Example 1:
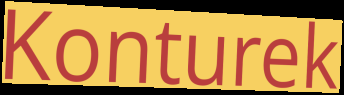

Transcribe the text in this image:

Konturek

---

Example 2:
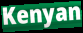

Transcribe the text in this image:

Kenyan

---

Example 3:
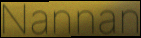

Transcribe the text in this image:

Nannan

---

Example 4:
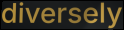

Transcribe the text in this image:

diversely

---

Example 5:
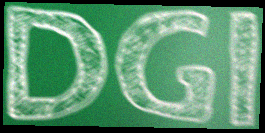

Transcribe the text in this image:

DGI